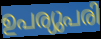
ഉപര്യുപരി